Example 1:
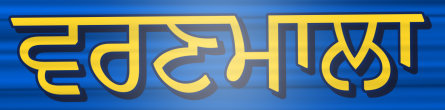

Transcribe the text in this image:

ਵਰਣਮਾਲਾ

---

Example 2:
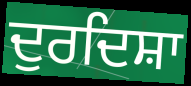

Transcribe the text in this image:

ਦੁਰਦਿਸ਼ਾ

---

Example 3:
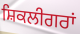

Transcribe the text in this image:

ਸ਼ਿਕਲੀਗਰਾਂ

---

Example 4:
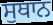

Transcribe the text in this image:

ਸੁਥਾਨ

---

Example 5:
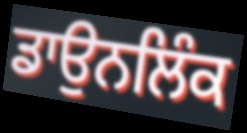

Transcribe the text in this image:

ਡਾਉਨਲਿੰਕ